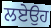
ਲਏਉਹ